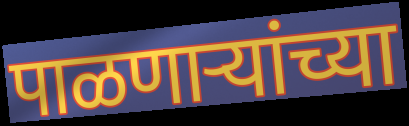
पाळणाऱ्यांच्या